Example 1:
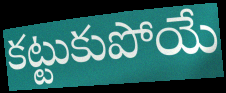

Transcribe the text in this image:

కట్టుకుపోయే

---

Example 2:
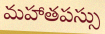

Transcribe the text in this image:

మహాతపస్సు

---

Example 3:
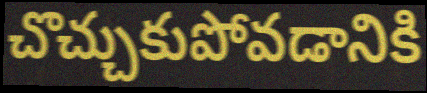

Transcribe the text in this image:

చొచ్చుకుపోవడానికి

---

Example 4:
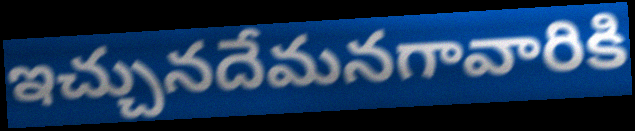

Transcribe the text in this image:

ఇచ్చునదేమనగావారికి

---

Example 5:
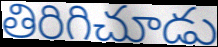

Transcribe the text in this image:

తిరిగిచూడు